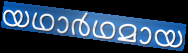
യഥാർഥമായ